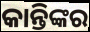
କାନ୍ତିଙ୍କର